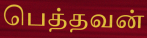
பெத்தவன்